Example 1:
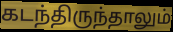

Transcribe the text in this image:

கடந்திருந்தாலும்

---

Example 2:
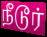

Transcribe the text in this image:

நீடூர்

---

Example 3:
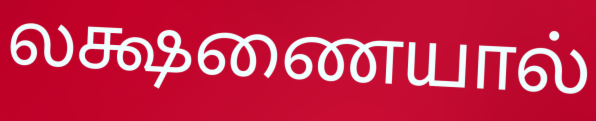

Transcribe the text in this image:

லக்ஷணையால்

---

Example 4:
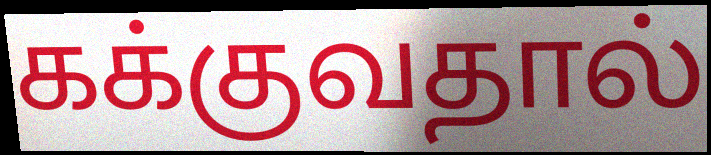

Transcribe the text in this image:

கக்குவதால்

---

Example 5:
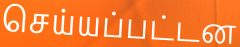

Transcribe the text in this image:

செய்யப்பட்டன